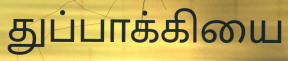
துப்பாக்கியை